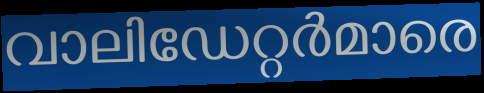
വാലിഡേറ്റർമാരെ